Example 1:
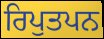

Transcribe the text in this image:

ਰਿਪੁਤਪਨ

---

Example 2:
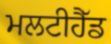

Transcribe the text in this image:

ਮਲਟੀਹੈੱਡ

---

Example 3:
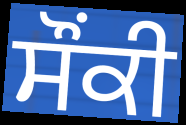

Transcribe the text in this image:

ਸੌਂਕੀ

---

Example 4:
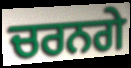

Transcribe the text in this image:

ਚਰਨਗੇ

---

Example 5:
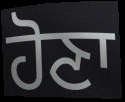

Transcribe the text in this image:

ਹੋਣਾ